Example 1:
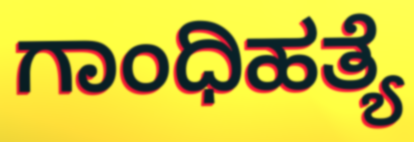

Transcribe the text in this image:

ಗಾಂಧಿಹತ್ಯೆ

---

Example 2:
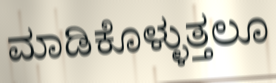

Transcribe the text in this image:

ಮಾಡಿಕೊಳ್ಳುತ್ತಲೂ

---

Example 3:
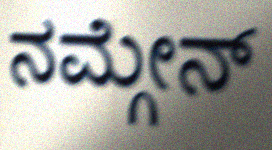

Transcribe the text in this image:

ನಮ್ಗೇನ್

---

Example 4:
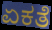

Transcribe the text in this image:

ಏಕತೆ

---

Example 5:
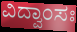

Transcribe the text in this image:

ವಿದ್ವಾಂಸಃ